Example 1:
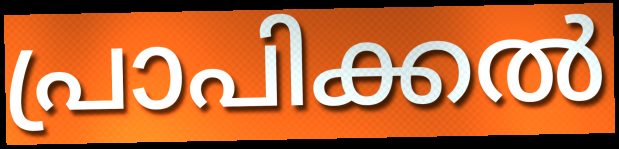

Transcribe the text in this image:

പ്രാപിക്കൽ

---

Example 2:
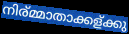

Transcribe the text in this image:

നിര്മ്മാതാക്കള്ക്കു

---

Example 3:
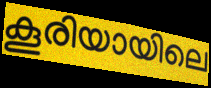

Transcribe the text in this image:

കൂരിയായിലെ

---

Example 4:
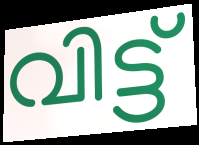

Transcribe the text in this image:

വിട്ട്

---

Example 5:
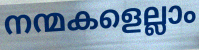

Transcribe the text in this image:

നന്മകളെല്ലാം